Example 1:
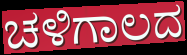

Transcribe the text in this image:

ಚಳಿಗಾಲದ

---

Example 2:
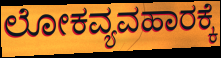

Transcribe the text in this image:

ಲೋಕವ್ಯವಹಾರಕ್ಕೆ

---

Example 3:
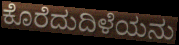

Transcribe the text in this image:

ಕೊರೆದುದಿಳೆಯನು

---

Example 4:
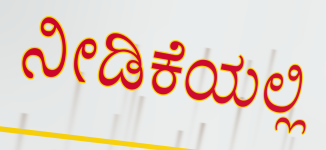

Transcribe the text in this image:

ನೀಡಿಕೆಯಲ್ಲಿ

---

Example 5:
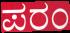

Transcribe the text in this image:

ಪರಂ